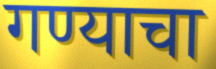
गण्याचा